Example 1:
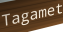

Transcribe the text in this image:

Tagamet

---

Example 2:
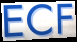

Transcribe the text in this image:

ECF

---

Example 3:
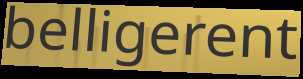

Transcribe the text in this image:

belligerent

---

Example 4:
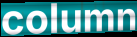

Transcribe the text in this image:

column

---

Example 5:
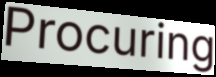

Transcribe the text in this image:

Procuring